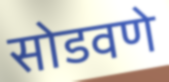
सोडवणे